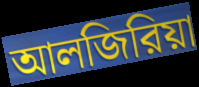
আলজিরিয়া